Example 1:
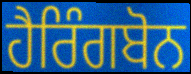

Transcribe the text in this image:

ਹੈਰਿੰਗਬੋਨ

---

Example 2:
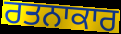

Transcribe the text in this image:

ਰਤਨਾਕਾਰ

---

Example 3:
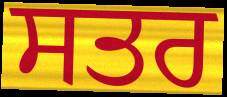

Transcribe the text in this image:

ਸਤਰ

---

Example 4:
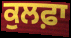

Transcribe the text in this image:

ਕੁਲਫ਼ਾ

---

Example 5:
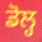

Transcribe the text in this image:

ਡੋਲ੍ਹ